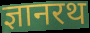
ज्ञानरथ